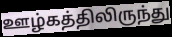
ஊழ்கத்திலிருந்து